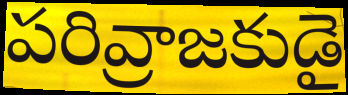
పరివ్రాజకుడై